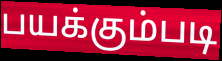
பயக்கும்படி